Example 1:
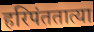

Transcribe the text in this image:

हरिपंततात्या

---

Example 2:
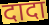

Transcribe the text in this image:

दादा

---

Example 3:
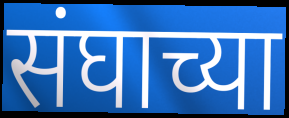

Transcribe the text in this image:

संघाच्या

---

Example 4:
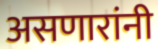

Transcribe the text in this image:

असणारांनी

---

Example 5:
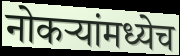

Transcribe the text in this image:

नोकऱ्यांमध्येच